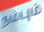
நம்பும்